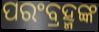
ପରଂବ୍ରହ୍ମଙ୍କ